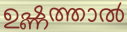
ഉഷ്ണത്താൽ